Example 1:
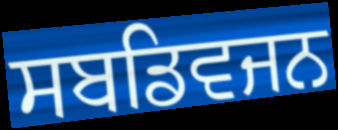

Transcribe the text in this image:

ਸਬਡਿਵਜਨ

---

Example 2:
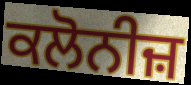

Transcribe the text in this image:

ਕਲੋਨੀਜ਼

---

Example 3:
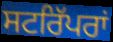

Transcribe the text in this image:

ਸਟਰਿੱਪਰਾਂ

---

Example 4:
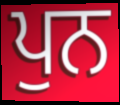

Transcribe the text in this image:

ਪੁਨ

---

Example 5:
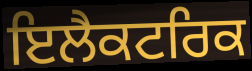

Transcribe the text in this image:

ਇਲੈਕਟਰਿਕ